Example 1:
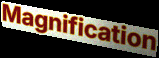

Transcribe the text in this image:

Magnification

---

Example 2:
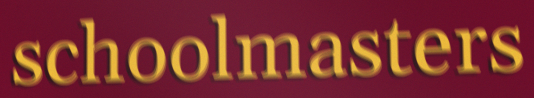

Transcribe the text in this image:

schoolmasters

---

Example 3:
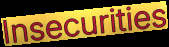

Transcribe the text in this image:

Insecurities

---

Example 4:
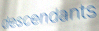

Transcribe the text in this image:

descendants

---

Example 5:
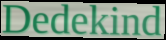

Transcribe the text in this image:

Dedekind